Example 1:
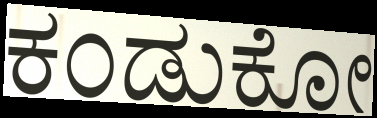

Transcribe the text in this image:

ಕಂಡುಕೋ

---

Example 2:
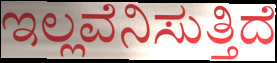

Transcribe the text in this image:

ಇಲ್ಲವೆನಿಸುತ್ತಿದೆ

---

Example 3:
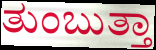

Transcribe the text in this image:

ತುಂಬುತ್ತಾ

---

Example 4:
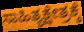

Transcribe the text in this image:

ಸಾಹಿತ್ಯಕ್ಷೇತ್ರಕ್ಕೆ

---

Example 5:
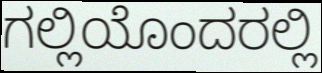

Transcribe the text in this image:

ಗಲ್ಲಿಯೊಂದರಲ್ಲಿ